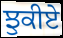
ਝੁਕੀਏ